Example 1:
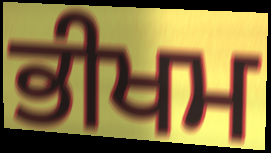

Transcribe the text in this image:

ਭੀਖਮ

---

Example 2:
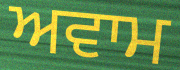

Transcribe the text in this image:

ਅਵਾਮ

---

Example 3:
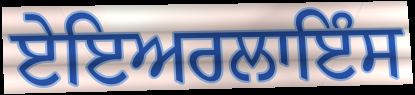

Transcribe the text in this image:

ਏਇਅਰਲਾਇੰਸ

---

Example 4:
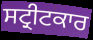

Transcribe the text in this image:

ਸਟ੍ਰੀਟਕਾਰ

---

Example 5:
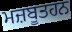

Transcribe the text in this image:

ਮਜ਼ਬੂਤਹਨ